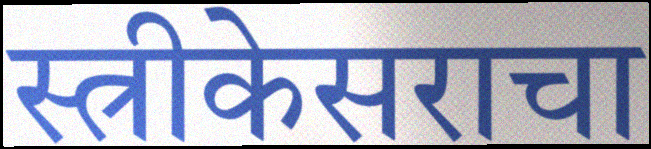
स्त्रीकेसराचा